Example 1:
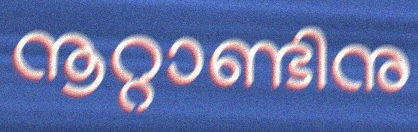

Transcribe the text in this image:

നൂറ്റാണ്ടിനു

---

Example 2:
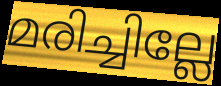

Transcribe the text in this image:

മരിച്ചില്ലേ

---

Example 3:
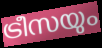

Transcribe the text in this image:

ട്രീസയും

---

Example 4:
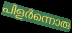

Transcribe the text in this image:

പിളർന്നൊരു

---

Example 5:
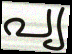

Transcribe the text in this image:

പ്യ